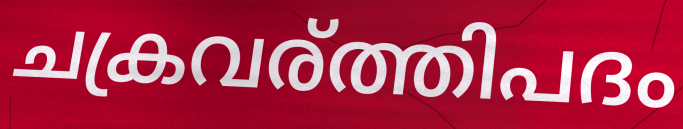
ചക്രവര്ത്തിപദം